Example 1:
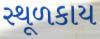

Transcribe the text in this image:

સ્થૂળકાય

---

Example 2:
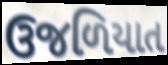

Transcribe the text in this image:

ઉજળિયાત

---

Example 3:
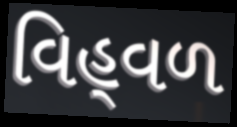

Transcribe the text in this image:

વિહ્‌વળ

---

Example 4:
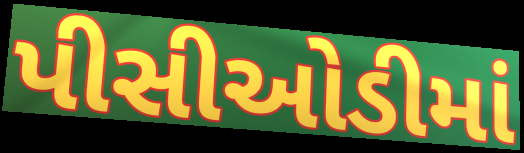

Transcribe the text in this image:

પીસીઓડીમાં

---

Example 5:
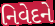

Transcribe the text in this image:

નિવેદને